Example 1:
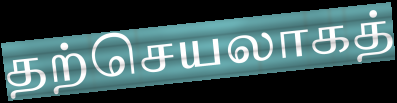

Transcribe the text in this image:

தற்செயலாகத்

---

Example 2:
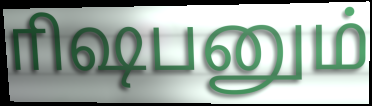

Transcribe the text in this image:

ரிஷபனும்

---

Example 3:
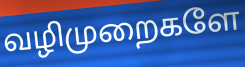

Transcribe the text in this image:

வழிமுறைகளே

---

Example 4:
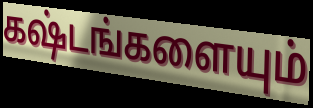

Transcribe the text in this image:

கஷ்டங்களையும்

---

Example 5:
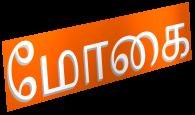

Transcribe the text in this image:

மோகை